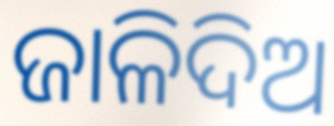
ଜାଳିଦିଅ